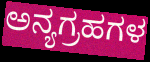
ಅನ್ಯಗ್ರಹಗಳ